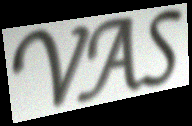
VAS